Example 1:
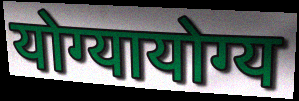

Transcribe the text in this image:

योग्यायोग्य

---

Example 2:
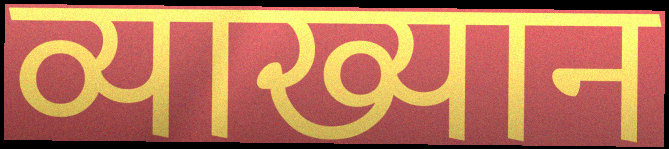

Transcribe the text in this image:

व्याख्यान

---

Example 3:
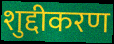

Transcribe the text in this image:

शुद्दीकरण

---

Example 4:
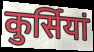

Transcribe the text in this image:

कुर्सियां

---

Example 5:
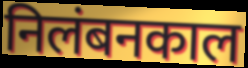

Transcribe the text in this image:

निलंबनकाल